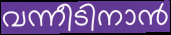
വന്നീടിനാൻ